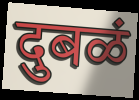
दुबळं